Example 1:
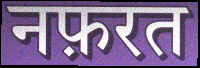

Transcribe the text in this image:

नफ़रत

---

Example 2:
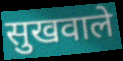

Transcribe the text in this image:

सुखवाले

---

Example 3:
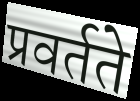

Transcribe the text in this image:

प्रवर्तते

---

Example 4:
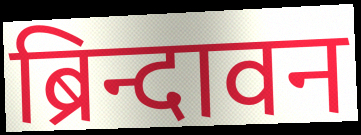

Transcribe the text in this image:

ब्रिन्दावन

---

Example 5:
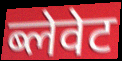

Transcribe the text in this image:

ब्लेवेट